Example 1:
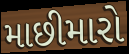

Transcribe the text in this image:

માછીમારો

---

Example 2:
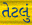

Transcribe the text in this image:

તેટલું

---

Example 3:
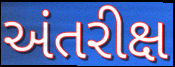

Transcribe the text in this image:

અંતરીક્ષ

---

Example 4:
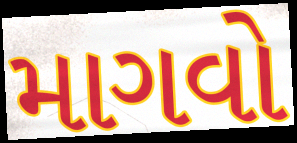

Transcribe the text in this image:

માગવો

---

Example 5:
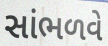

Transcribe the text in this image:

સાંભળવે